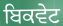
ਬਿਕਵੇਟ